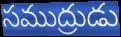
సముద్రుడు